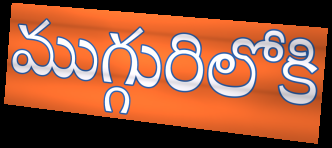
ముగ్గురిలోకి